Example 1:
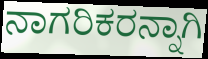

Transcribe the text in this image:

ನಾಗರಿಕರನ್ನಾಗಿ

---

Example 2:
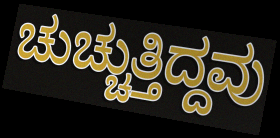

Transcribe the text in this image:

ಚುಚ್ಚುತ್ತಿದ್ದವು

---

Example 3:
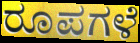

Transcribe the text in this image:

ರೂಪಗಳೆ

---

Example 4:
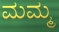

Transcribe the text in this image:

ಮಮ್ಮ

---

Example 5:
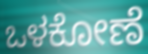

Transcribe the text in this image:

ಒಳಕೋಣೆ